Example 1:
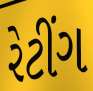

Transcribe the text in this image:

રેટીંગ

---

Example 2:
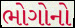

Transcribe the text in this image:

ભોગોનો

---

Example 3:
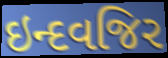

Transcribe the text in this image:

ઇન્દવજિર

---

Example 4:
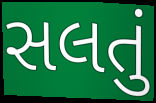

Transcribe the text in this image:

સલતું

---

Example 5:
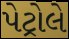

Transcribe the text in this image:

પેટ્રોલે